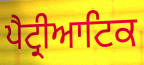
ਪੈਟ੍ਰੀਆਟਿਕ